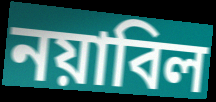
নয়াবিল